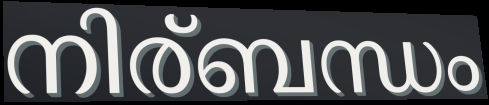
നിര്ബന്ധം